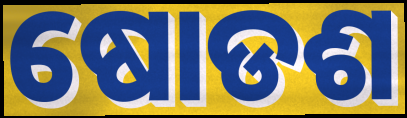
ଷୋଡଶ